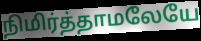
நிமிர்த்தாமலேயே